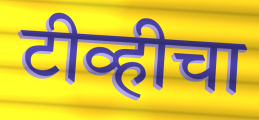
टीव्हीचा